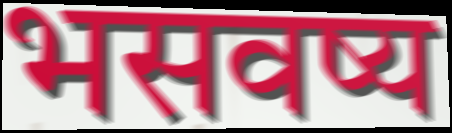
भसवष्य